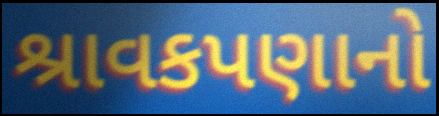
શ્રાવકપણાનો